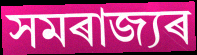
সমৰাজ্যৰ